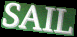
SAIL